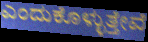
ಎಂದುಕೊಳ್ಳುತ್ತೇವೆ